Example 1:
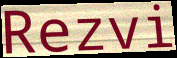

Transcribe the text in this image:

Rezvi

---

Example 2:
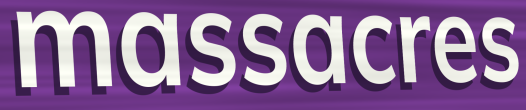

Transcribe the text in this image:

massacres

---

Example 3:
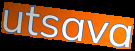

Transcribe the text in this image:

utsava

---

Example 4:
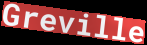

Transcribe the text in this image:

Greville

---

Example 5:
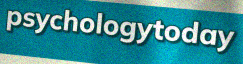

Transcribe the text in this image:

psychologytoday